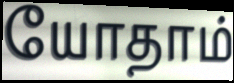
யோதாம்